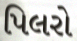
પિલરો